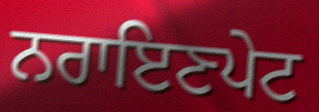
ਨਰਾਇਣਪੇਟ